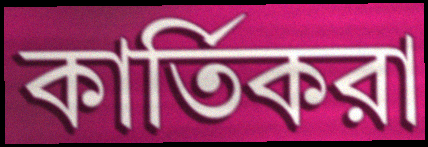
কার্তিকরা